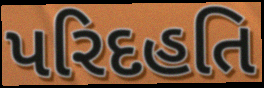
પરિદહતિ